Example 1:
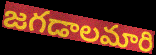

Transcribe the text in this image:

జగడాలమారి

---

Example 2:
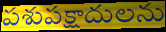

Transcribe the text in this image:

పశుపక్షాదులను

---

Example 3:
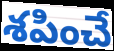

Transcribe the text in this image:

శపించే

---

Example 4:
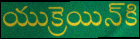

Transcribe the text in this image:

యుక్రెయిన్‌కి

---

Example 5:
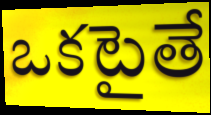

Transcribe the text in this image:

ఒకటైతే